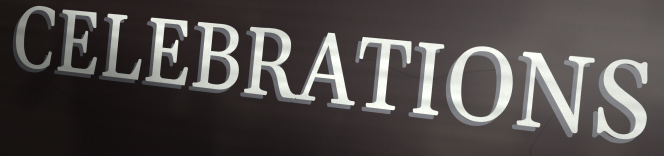
CELEBRATIONS